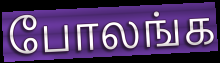
போலங்க